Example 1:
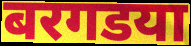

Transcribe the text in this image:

बरगडया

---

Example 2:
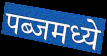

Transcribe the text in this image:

पब्जमध्ये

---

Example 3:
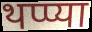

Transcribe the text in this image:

थप्प्या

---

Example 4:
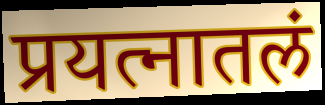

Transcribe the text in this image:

प्रयत्नातलं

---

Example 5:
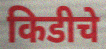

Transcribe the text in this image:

किडीचे